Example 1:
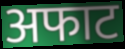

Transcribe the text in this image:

अफाट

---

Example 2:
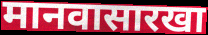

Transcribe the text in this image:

मानवासारखा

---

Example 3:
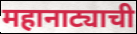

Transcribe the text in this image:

महानाट्याची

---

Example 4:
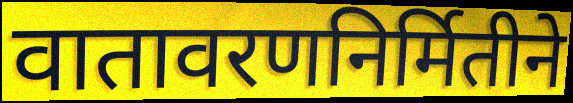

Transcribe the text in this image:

वातावरणनिर्मितीने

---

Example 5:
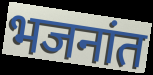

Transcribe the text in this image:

भजनांत